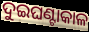
ଦୁଇଘଣ୍ଟାକାଳ